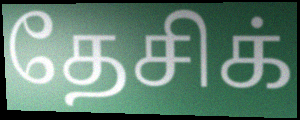
தேசிக்